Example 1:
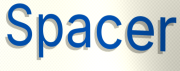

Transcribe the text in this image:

Spacer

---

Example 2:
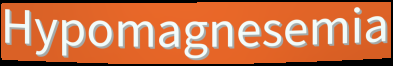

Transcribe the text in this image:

Hypomagnesemia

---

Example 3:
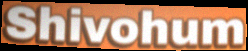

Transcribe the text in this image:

Shivohum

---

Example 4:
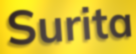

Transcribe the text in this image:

Surita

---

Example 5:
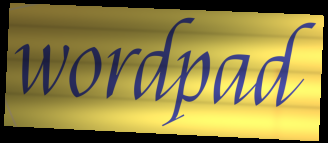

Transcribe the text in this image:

wordpad